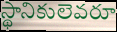
స్థానికులెవరూ